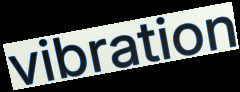
vibration